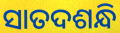
ସାତଦଶନ୍ଧି